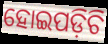
ହୋଇପଡ଼ିଚି